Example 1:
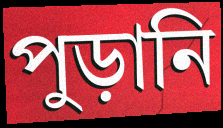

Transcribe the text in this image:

পুড়ানি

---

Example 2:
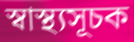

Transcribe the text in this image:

স্বাস্থ্যসূচক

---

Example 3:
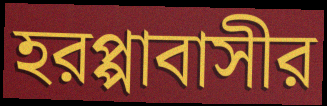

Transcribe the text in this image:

হরপ্পাবাসীর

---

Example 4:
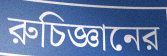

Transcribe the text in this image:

রুচিজ্ঞানের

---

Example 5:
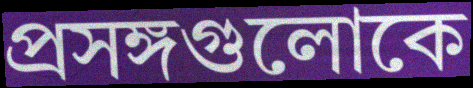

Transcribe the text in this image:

প্রসঙ্গগুলোকে